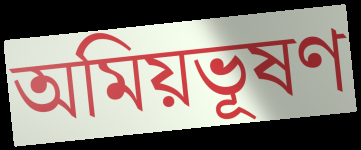
অমিয়ভূষণ